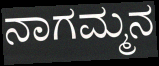
ನಾಗಮ್ಮನ